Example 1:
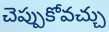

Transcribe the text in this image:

చెప్పుకోవచ్చు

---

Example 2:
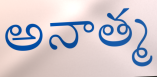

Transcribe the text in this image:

అనాత్మ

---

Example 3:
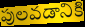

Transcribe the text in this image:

పులవడానికి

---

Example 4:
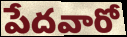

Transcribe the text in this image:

పేదవారో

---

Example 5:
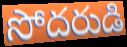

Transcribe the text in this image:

సోదరుడి